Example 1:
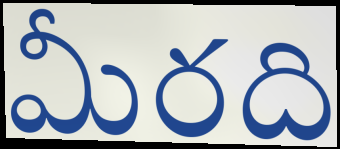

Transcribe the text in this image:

మీరది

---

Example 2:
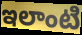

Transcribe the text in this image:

ఇలాంటి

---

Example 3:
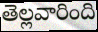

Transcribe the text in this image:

తెల్లవారింది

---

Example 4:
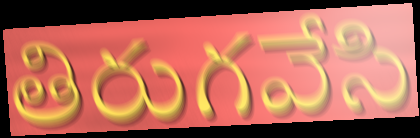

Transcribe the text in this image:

తిరుగవేసి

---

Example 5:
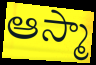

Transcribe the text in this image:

ఆస్మా